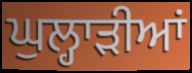
ਘੁਲ੍ਹਾੜੀਆਂ